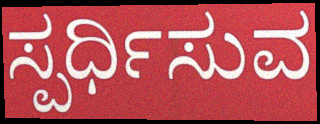
ಸ್ಪರ್ಧಿಸುವ